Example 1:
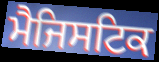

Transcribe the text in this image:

ਮੈਜਿਸਟਿਕ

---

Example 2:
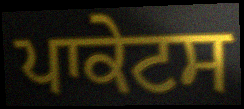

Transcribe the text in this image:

ਪਾਕੇਟਸ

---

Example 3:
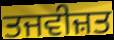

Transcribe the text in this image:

ਤਜਵੀਜ਼ਤ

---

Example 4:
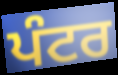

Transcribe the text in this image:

ਪੰਟਰ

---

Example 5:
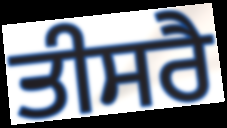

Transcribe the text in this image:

ਤੀਸਰੈ